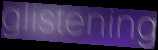
glistening